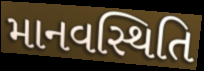
માનવસ્થિતિ